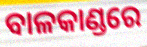
ବାଳକାଣ୍ଡରେ